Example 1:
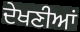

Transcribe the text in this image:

ਦੇਖਣੀਆਂ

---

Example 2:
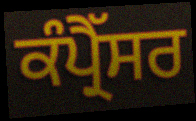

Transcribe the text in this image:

ਕੰਪ੍ਰੈੱਸਰ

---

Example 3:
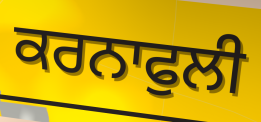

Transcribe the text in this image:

ਕਰਨਾਫੁਲੀ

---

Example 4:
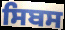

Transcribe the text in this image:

ਸਿਬਸ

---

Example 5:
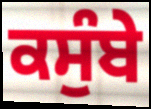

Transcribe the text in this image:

ਕਸੁੰਬੇ